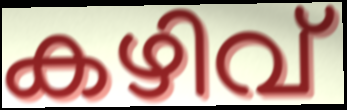
കഴിവ്